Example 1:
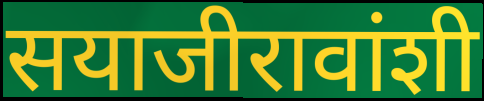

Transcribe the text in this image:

सयाजीरावांशी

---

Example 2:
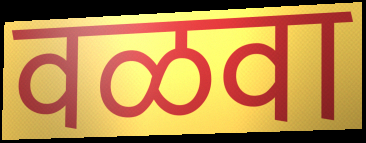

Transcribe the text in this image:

वळवा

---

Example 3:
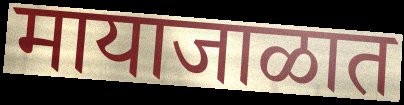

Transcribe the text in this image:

मायाजाळात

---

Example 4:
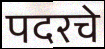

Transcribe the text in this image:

पदरचे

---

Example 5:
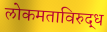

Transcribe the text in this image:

लोकमताविरुद्ध